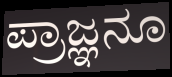
ಪ್ರಾಜ್ಞನೂ